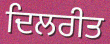
ਦਿਲਰੀਤ